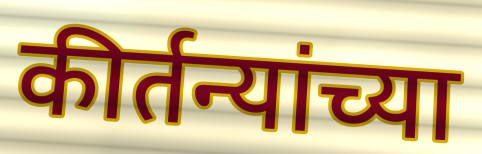
कीर्तन्यांच्या